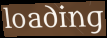
loading